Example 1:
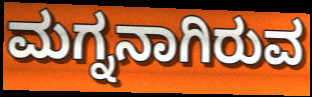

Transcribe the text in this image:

ಮಗ್ನನಾಗಿರುವ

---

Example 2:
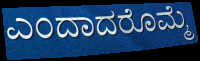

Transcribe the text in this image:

ಎಂದಾದರೊಮ್ಮೆ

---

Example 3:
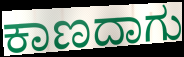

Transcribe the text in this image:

ಕಾಣದಾಗು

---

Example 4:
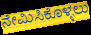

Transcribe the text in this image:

ನೇಮಿಸಿಕೊಳ್ಳಲು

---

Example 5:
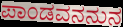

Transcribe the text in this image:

ಪಾಂಡವನನುನ